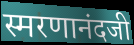
स्मरणानंदजी